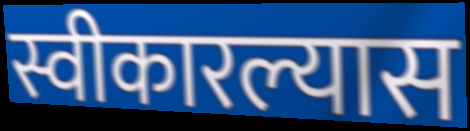
स्वीकारल्यास